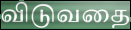
விடுவதை